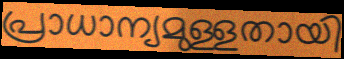
പ്രാധാന്യമുള്ളതായി